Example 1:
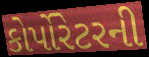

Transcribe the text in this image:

કોર્પોરેટરની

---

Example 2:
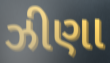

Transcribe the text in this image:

ઝીણા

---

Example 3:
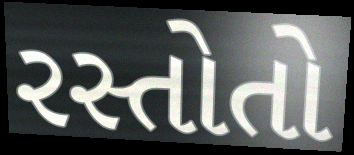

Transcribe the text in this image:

રસ્તોતો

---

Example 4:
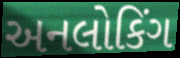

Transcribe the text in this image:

અનલોકિંગ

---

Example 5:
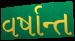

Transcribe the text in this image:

વર્ષાન્ત